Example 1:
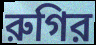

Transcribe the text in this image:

রুগির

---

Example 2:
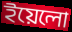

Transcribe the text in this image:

ইয়েলো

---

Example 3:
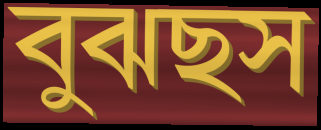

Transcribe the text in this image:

বুঝছস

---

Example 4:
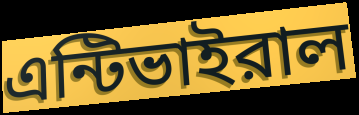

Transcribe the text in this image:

এন্টিভাইরাল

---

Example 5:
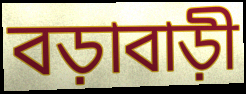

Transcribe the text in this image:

বড়াবাড়ী